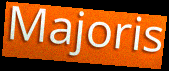
Majoris